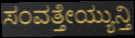
ಸಂವತ್ತೇಯ್ಯುನ್ತಿ